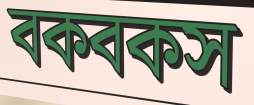
বকবকস